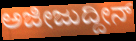
ಅಜೀಜುದ್ದೀನ್